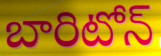
బారిటోన్